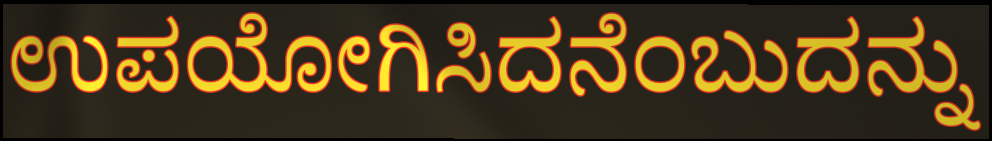
ಉಪಯೋಗಿಸಿದನೆಂಬುದನ್ನು